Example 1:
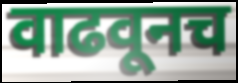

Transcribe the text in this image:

वाढवूनच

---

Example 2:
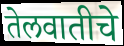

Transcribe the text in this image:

तेलवातीचे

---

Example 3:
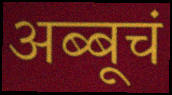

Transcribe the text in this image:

अब्बूचं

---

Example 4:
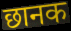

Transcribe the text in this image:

छानक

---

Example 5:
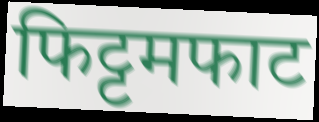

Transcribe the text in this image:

फिट्टमफाट